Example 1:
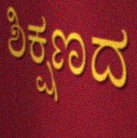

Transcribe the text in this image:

ಶಿಕ್ಷಣದ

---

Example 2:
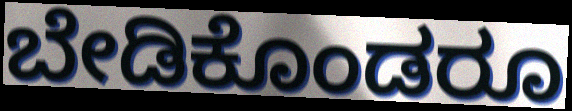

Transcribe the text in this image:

ಬೇಡಿಕೊಂಡರೂ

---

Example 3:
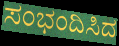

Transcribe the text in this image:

ಸಂಭಂದಿಸಿದ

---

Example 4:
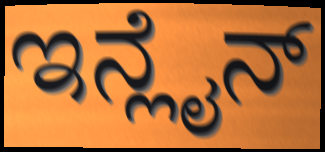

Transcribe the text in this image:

ಇನ್ಲೈನ್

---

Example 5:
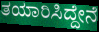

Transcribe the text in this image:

ತಯಾರಿಸಿದ್ದೇನೆ